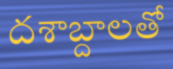
దశాబ్దాలతో